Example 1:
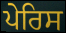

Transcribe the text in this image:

ਪੇਰਿਸ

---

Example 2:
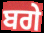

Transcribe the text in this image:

ਬਗੇ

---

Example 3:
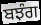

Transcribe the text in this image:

ਬਝੰਗ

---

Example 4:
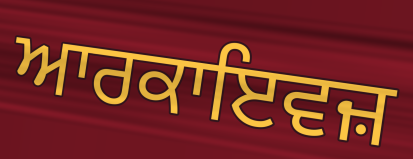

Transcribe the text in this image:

ਆਰਕਾਇਵਜ਼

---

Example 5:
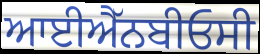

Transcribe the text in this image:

ਆਈਐੱਨਬੀਓਸੀ